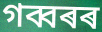
গব্বৰৰ